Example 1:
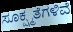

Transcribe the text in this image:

ಸೂಕ್ಷ್ಮತೆಗಳಿವೆ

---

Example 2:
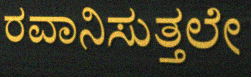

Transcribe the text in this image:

ರವಾನಿಸುತ್ತಲೇ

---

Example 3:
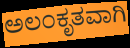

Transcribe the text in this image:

ಅಲಂಕೃತವಾಗಿ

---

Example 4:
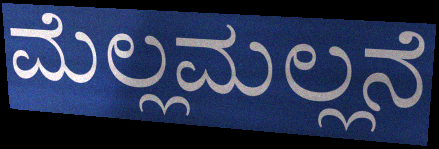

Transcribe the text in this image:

ಮೆಲ್ಲಮಲ್ಲನೆ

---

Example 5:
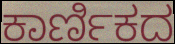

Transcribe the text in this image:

ಕಾರ್ಣಿಕದ